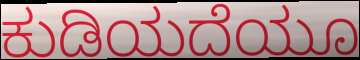
ಕುಡಿಯದೆಯೂ